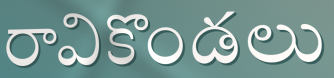
రావికొండలు